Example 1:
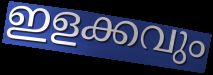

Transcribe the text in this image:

ഇളക്കവും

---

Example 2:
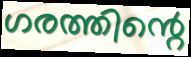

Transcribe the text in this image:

ഗരത്തിന്റെ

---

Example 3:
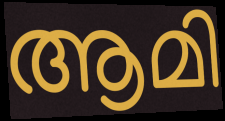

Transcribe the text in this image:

ആമി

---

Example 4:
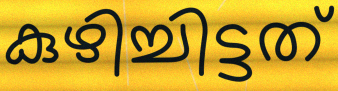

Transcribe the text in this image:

കുഴിച്ചിട്ടത്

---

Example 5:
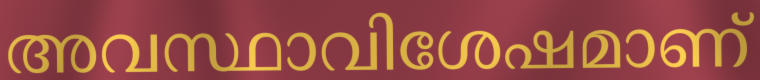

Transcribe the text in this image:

അവസ്ഥാവിശേഷമാണ്